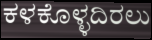
ಕಳಕೊಳ್ಳದಿರಲು